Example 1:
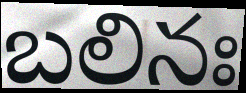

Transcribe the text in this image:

బలినః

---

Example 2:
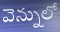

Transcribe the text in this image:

వెన్నులో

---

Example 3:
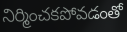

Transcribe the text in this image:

నిర్మించకపోవడంతో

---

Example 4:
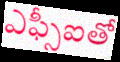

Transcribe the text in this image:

ఎఫ్సీఐతో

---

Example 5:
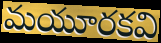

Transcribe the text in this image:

మయూరకవి